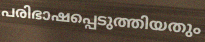
പരിഭാഷപ്പെടുത്തിയതും